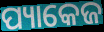
ପ୍ୟାକେଜ